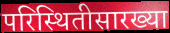
परिस्थितीसारख्या